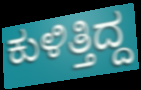
ಕುಳಿತ್ತಿದ್ದ